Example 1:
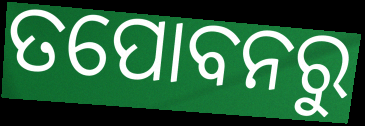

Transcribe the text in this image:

ତପୋବନରୁ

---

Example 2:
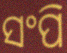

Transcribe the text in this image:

ସଂପି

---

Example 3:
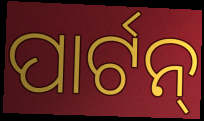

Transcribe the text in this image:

ପାର୍ଟନ୍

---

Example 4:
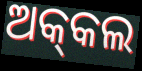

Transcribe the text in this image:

ଅକ୍‌କଲ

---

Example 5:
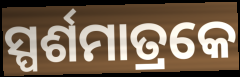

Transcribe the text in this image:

ସ୍ପର୍ଶମାତ୍ରକେ